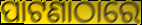
ପାଟଣାଠାରେ